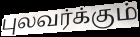
புலவர்க்கும்